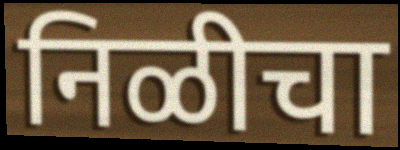
निळीचा